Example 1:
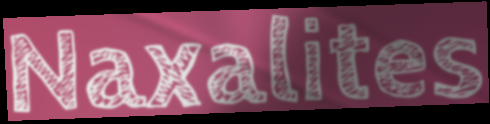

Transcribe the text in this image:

Naxalites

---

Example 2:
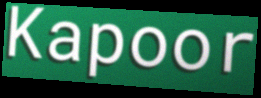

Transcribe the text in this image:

Kapoor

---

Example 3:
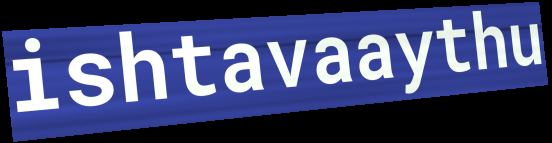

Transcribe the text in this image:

ishtavaaythu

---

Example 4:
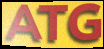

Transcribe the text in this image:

ATG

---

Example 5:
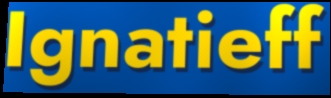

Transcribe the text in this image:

Ignatieff